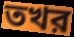
তখর